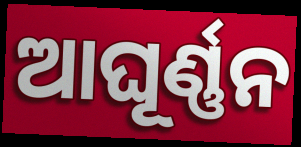
ଆଘୂର୍ଣ୍ଣନ